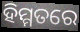
ହିମ୍ମତରେ